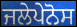
ਜਲੇਪੇਨੋਸ